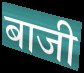
बाजी